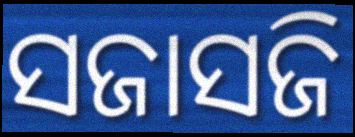
ସଜାସଜି